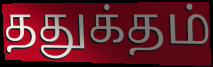
ததுக்தம்